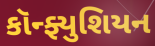
કૉન્ફ્યુશિયન